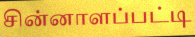
சின்னாளப்பட்டி